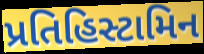
પ્રતિહિસ્ટામિન